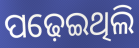
ପଢ଼େଇଥିଲି